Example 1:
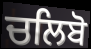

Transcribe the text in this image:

ਚਲਿਬੋ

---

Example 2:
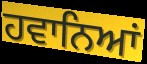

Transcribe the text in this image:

ਹਵਾਨਿਆਂ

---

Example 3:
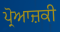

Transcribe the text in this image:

ਪ੍ਰੋਆਜ਼ਕੀ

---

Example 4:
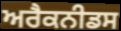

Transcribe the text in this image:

ਅਰੈਕਨੀਡਸ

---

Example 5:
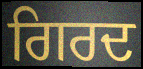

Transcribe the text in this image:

ਗਿਰਦ